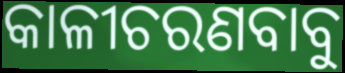
କାଳୀଚରଣବାବୁ